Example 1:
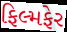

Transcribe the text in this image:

ફિલ્મફેર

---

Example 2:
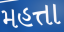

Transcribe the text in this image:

મહત્તા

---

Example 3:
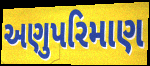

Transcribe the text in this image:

અણુપરિમાણ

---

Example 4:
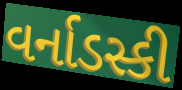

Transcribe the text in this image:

વર્નાડસ્કી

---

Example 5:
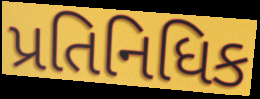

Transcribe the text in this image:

પ્રતિનિધિક